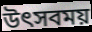
উৎসবময়